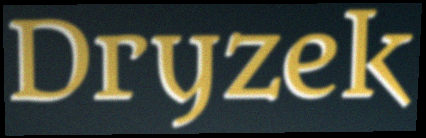
Dryzek